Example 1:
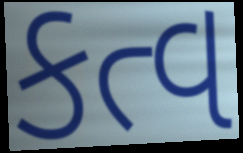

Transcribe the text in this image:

કત્વ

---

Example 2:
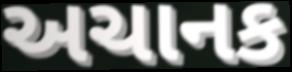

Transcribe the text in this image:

અચાનક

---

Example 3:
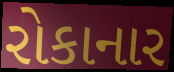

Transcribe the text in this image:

રોકાનાર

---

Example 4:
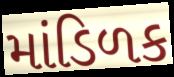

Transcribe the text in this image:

માંડિળક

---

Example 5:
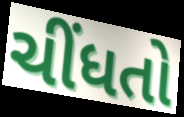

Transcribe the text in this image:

ચીંધતો